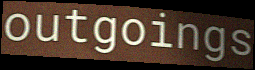
outgoings